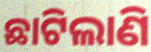
ଛାଟିଲାଣି